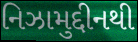
નિઝામુદ્દીનથી